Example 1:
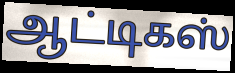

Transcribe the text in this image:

ஆட்டிகஸ்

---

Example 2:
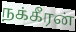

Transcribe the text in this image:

நக்கீரன்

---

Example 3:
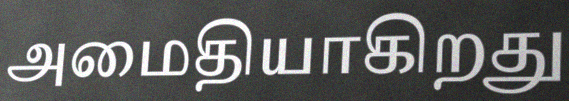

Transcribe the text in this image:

அமைதியாகிறது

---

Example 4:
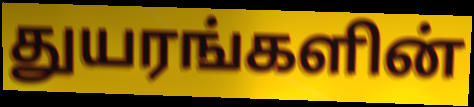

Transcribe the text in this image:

துயரங்களின்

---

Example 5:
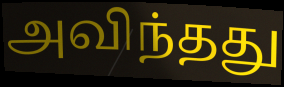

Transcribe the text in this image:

அவிந்தது